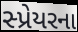
સ્પ્રેયરના